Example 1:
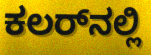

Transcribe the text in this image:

ಕಲರ್‌ನಲ್ಲಿ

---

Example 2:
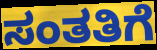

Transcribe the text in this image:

ಸಂತತಿಗೆ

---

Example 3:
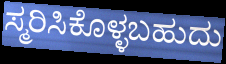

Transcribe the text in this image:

ಸ್ಮರಿಸಿಕೊಳ್ಳಬಹುದು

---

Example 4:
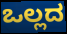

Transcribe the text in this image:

ಒಲ್ಲದ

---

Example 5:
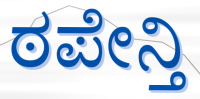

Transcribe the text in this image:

ಠಪೇನ್ತಿ